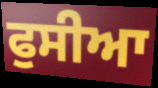
ਫੁਸੀਆ